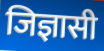
जिज्ञासी